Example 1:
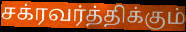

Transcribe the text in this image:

சக்ரவர்த்திக்கும்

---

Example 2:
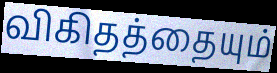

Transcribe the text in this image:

விகிதத்தையும்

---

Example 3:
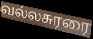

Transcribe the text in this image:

வல்லசுரரை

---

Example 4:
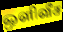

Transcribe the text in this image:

ஒளிவீச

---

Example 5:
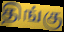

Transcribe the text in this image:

திங்கு